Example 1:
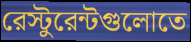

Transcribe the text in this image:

রেস্টুরেন্টগুলোতে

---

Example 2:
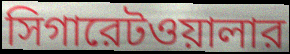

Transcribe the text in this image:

সিগারেটওয়ালার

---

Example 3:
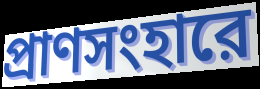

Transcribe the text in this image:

প্রাণসংহারে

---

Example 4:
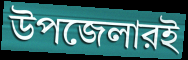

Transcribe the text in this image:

উপজেলারই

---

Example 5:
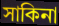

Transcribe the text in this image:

সাকিনা